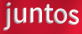
juntos